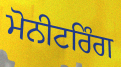
ਮੋਨੀਟਰਿੰਗ